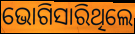
ଭୋଗିସାରିଥିଲେ